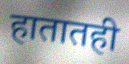
हातातही